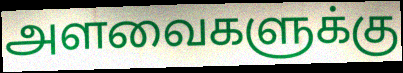
அளவைகளுக்கு